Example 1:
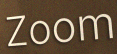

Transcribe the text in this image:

Zoom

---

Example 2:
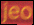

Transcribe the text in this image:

jeo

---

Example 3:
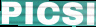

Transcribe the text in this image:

PICSI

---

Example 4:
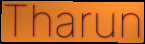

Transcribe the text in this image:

Tharun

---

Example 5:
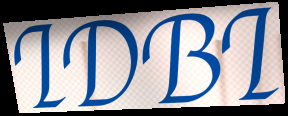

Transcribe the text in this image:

IDBI